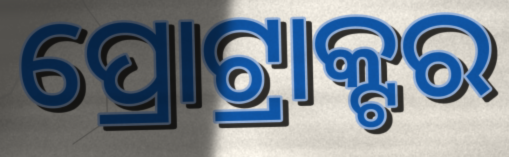
ପ୍ରୋଟ୍ରାକ୍ଟର